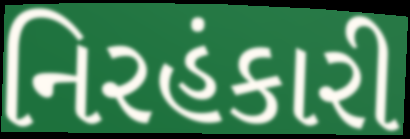
નિરહંકારી